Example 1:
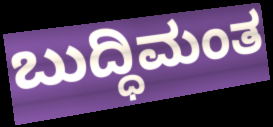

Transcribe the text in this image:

ಬುದ್ಧಿಮಂತ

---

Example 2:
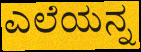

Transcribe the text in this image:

ಎಲೆಯನ್ನ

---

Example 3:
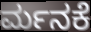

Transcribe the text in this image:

ರ್ಮನಕೆ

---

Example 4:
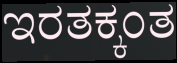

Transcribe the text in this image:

ಇರತಕ್ಕಂತ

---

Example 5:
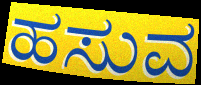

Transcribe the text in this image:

ಹಸುವ